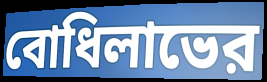
বোধিলাভের